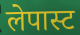
लेपास्ट